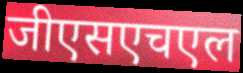
जीएसएचएल